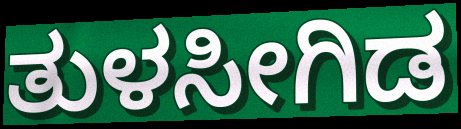
ತುಳಸೀಗಿಡ